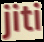
jiti